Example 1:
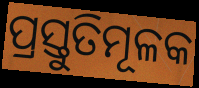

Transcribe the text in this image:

ପ୍ରସ୍ତୁତିମୂଳକ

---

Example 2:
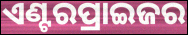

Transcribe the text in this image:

ଏଣ୍ଟରପ୍ରାଇଜର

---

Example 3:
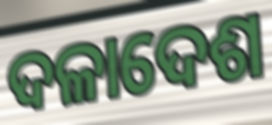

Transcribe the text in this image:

ଦଳାଦେଶ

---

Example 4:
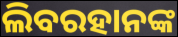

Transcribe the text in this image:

ଲିବରହାନଙ୍କ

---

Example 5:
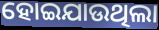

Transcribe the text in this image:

ହୋଇଯାଉଥିଲା